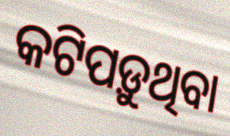
କଟିପଡ଼ୁଥିବା